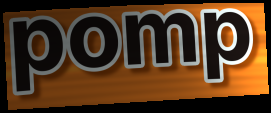
pomp